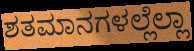
ಶತಮಾನಗಳಲ್ಲೆಲ್ಲಾ